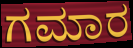
ಗಮಾರ